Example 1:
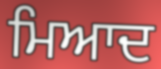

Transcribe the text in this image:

ਮਿਆਦ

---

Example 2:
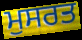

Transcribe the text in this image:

ਮੁਸਰਤ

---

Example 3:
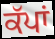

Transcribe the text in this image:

ਕੱਪਾਂ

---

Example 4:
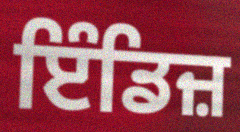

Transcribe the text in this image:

ਇੰਡਿਜ਼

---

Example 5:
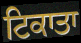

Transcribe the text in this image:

ਟਿਕਾਤਾ